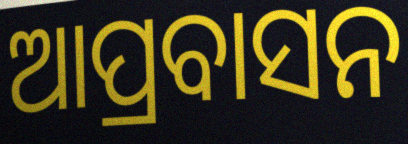
ଆପ୍ରବାସନ